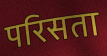
परिसता